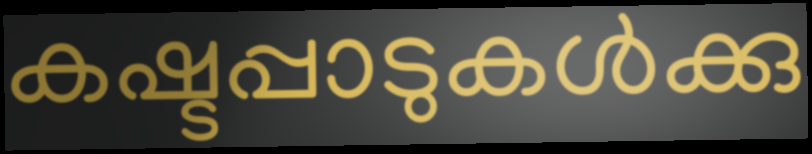
കഷ്ടപ്പാടുകൾക്കു